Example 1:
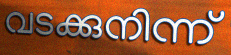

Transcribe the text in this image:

വടക്കുനിന്ന്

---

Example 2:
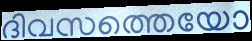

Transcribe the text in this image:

ദിവസത്തെയോ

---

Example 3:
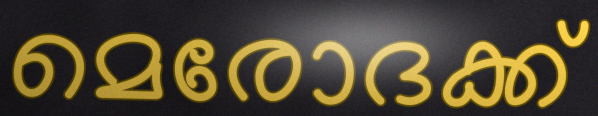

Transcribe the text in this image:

മെരോദക്ക്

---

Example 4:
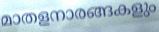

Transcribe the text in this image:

മാതളനാരങ്ങകളും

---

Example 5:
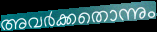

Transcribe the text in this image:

അവർക്കതൊന്നും